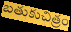
బతుకుచిత్రం